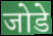
जोडे